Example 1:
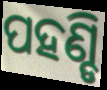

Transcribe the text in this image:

ପହଣ୍ଡି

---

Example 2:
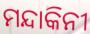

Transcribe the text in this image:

ମନ୍ଦାକିନୀ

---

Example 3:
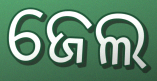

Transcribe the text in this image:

ଜେଲ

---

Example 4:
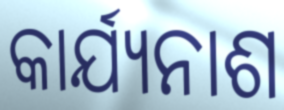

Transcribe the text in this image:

କାର୍ଯ୍ୟନାଶ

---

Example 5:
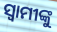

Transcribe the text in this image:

ସ୍ବାମୀଙ୍କୁ